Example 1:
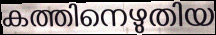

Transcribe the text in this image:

കത്തിനെഴുതിയ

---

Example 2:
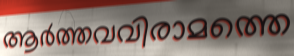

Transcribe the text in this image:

ആർത്തവവിരാമത്തെ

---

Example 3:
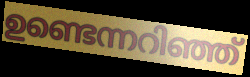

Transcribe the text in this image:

ഉണ്ടെന്നറിഞ്ഞ്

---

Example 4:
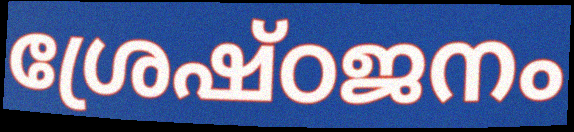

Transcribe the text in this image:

ശ്രേഷ്ഠജനം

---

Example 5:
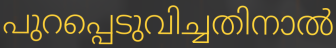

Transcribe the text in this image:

പുറപ്പെടുവിച്ചതിനാൽ